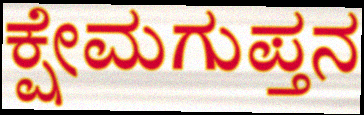
ಕ್ಷೇಮಗುಪ್ತನ